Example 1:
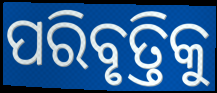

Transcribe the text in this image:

ପରିବୃତ୍ତିକୁ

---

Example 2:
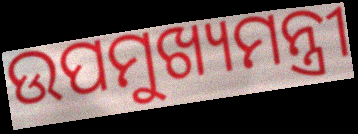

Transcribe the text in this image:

ଉପମୁଖ୍ୟମନ୍ତ୍ରୀ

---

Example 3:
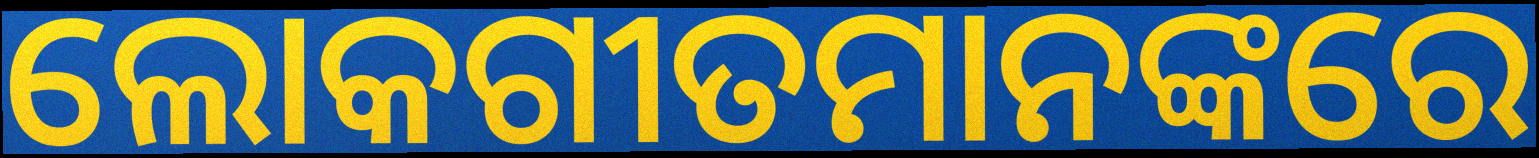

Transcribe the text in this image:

ଲୋକଗୀତମାନଙ୍କରେ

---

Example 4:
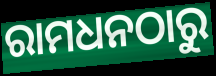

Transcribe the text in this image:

ରାମଧନଠାରୁ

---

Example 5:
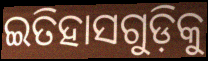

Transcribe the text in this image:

ଇତିହାସଗୁଡ଼ିକୁ